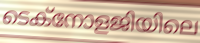
ടെക്നോളജിയിലെ